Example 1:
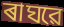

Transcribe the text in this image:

ৰাঘৱে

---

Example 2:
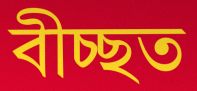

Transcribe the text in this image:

বীচ্ছত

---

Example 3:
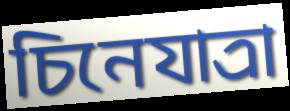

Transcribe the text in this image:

চিনেযাত্ৰা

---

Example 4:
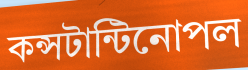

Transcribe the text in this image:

কন্সটান্টিনোপল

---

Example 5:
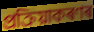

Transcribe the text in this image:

প্ৰক্ৰিয়াকৰণৰ